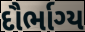
દૌર્ભાગ્ય